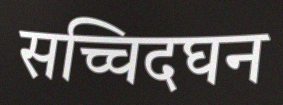
सच्चिदघन